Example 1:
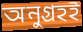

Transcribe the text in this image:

অনুগ্রহই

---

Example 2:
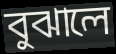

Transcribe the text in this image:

বুঝালে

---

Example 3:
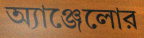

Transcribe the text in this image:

অ্যাঞ্জেলোর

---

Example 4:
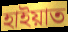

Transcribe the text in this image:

হাইয়াত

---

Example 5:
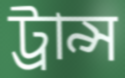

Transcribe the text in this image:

ট্রান্স